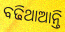
ବଢିଥାଆନ୍ତି